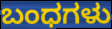
ಬಂಧಗಳು